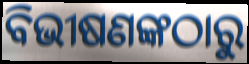
ବିଭୀଷଣଙ୍କଠାରୁ